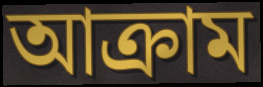
আক্রাম